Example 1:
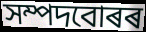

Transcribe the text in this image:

সম্পদবোৰৰ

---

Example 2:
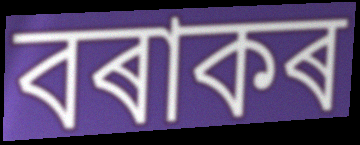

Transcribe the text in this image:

বৰাকৰ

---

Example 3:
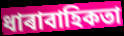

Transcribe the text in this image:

ধাৰাবাহিকতা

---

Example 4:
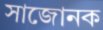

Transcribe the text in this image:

সাজোনক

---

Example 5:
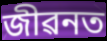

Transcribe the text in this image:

জীৱনত